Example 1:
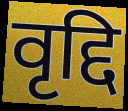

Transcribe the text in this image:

वृद्दि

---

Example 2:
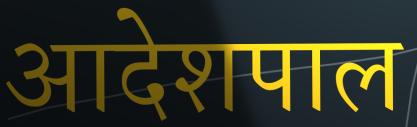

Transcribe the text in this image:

आदेशपाल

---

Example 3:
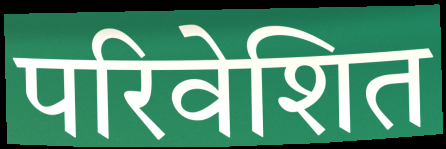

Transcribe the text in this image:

परिवेशित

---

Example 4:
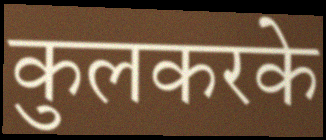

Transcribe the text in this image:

कुलकरके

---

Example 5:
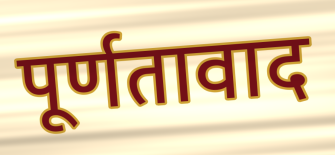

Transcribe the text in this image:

पूर्णतावाद